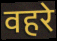
वहरे